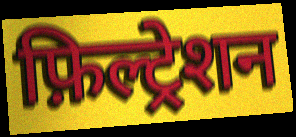
फ़िल्ट्रेशन